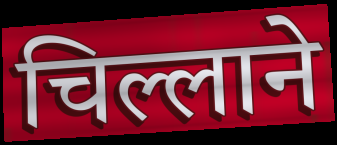
चिल्लाने